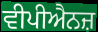
ਵੀਪੀਐਨਜ਼